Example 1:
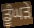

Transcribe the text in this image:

ਡੂੰਘੜੇ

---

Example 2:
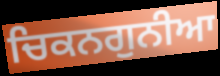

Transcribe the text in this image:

ਚਿਕਨਗੁਨੀਆ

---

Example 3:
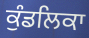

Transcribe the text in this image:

ਕੁੰਡਲਿਕਾ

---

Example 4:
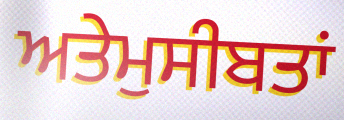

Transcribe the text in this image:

ਅਤੇਮੁਸੀਬਤਾਂ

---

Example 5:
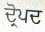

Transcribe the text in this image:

ਦ੍ਰੋਪਦ